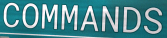
COMMANDS